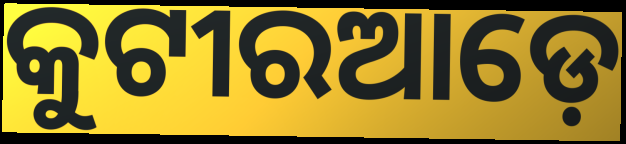
କୁଟୀରଆଡ଼େ